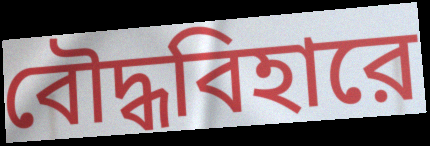
বৌদ্ধবিহারে